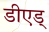
डीएड्